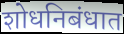
शोधनिबंधात